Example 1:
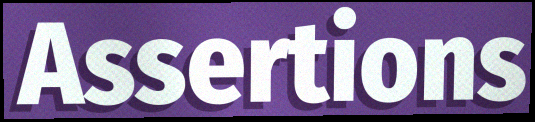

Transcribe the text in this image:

Assertions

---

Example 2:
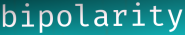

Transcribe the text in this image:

bipolarity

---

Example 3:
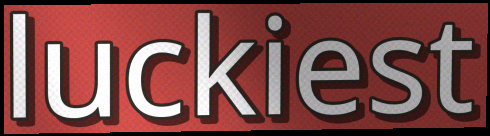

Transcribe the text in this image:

luckiest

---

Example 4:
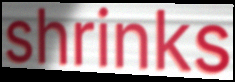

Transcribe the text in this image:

shrinks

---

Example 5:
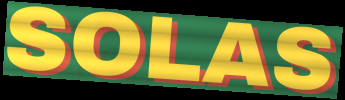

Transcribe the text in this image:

SOLAS